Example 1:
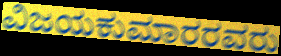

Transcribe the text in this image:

ವಿಜಯಕುಮಾರರವರು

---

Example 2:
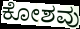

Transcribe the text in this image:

ಕೋಶವು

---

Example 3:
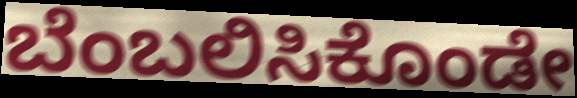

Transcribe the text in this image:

ಬೆಂಬಲಿಸಿಕೊಂಡೇ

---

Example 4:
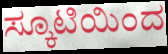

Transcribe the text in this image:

ಸ್ಕೂಟಿಯಿಂದ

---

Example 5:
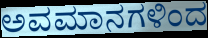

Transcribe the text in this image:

ಅವಮಾನಗಳಿಂದ